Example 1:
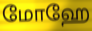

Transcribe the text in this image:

மோஹே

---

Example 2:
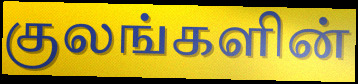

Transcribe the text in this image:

குலங்களின்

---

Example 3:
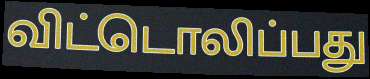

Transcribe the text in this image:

விட்டொலிப்பது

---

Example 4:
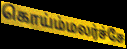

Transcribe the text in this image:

கொய்ம்மலர்ச்சே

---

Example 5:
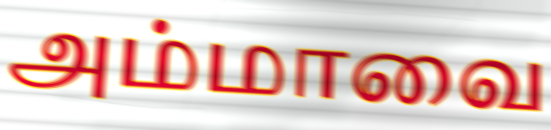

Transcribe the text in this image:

அம்மாவை